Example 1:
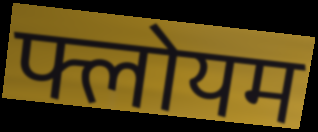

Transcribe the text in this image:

फ्लोयम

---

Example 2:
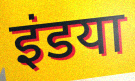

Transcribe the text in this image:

इंडया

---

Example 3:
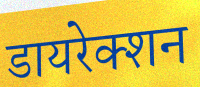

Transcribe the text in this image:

डायरेक्शन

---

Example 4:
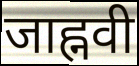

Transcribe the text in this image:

जाह्नवी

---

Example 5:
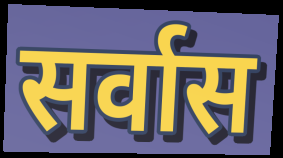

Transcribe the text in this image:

सर्वास